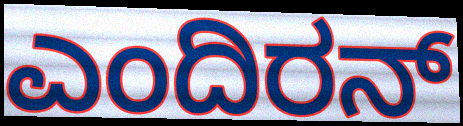
ಎಂದಿರನ್